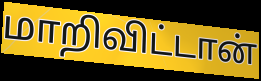
மாறிவிட்டான்